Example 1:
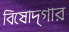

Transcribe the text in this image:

বিষোদ্‌গার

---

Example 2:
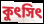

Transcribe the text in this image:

কুৎসিৎ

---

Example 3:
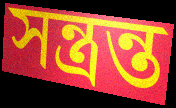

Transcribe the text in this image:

সন্ত্রন্ত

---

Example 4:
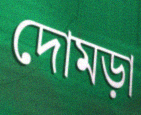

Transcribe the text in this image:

দোমড়া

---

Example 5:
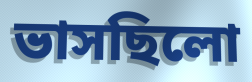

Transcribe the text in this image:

ভাসছিলো